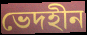
ভেদহীন